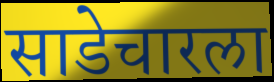
साडेचारला